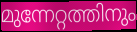
മുന്നേറ്റത്തിനും